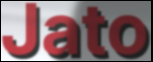
Jato